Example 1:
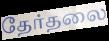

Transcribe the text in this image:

தேர்தலை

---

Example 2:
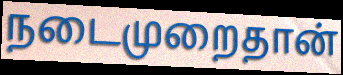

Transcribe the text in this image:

நடைமுறைதான்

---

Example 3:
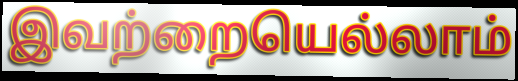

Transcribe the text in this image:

இவற்றையெல்லாம்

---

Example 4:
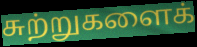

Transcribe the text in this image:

சுற்றுகளைக்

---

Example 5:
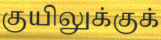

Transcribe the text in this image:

குயிலுக்குக்